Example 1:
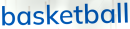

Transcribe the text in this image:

basketball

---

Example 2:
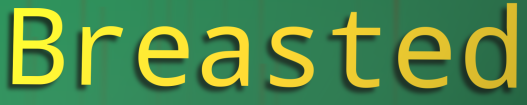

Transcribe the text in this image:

Breasted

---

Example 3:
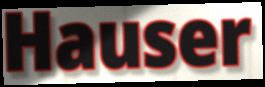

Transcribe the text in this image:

Hauser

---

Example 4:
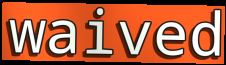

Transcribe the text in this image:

waived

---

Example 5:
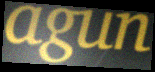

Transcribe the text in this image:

agun